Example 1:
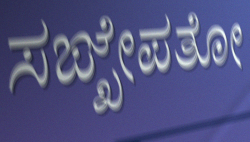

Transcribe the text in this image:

ಸಙ್ಖೇಪತೋ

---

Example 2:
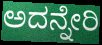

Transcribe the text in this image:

ಅದನ್ನೇರಿ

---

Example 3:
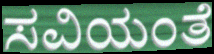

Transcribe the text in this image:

ಸವಿಯಂತೆ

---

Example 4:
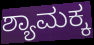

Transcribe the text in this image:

ಶ್ಯಾಮಕ್ಕ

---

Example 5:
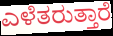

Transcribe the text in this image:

ಎಳೆತರುತ್ತಾರೆ